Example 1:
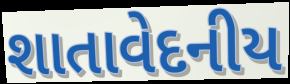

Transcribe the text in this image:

શાતાવેદનીય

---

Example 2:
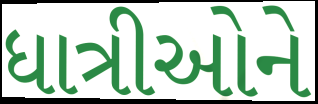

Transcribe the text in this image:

ધાત્રીઓને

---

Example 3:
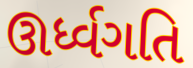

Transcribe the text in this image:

ઊર્ધ્વગતિ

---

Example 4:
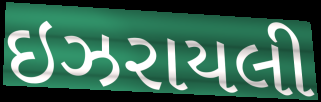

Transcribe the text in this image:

ઇઝરાયલી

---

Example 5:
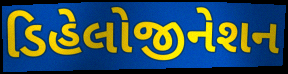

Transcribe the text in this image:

ડિહેલોજીનેશન